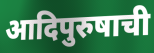
आदिपुरुषाची